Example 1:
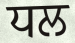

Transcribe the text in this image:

ਧਲ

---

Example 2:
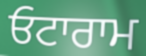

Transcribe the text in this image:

ਓਟਾਰਾਮ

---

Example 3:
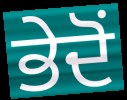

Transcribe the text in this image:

ਭੇਦੋਂ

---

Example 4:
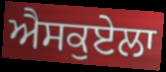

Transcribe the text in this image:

ਐਸਕੁਏਲਾ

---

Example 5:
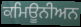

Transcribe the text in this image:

ਕਮਿਊਨੀਅਨ